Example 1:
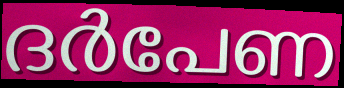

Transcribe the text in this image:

ദർപേണ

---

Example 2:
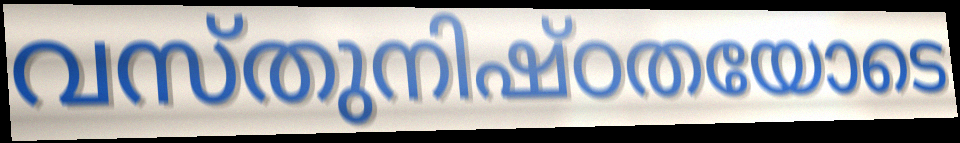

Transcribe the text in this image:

വസ്തുനിഷ്ഠതയോടെ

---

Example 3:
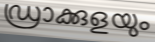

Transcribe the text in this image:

ഡ്രാക്കുളയും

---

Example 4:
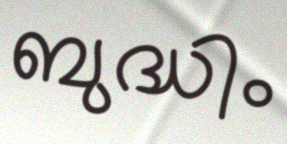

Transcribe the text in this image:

ബുദ്ധിം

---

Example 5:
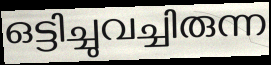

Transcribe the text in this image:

ഒട്ടിച്ചുവച്ചിരുന്ന